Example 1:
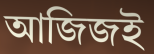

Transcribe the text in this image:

আজিজই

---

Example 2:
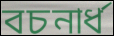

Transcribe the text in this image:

বচনার্ধ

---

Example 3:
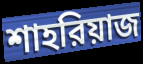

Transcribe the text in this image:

শাহরিয়াজ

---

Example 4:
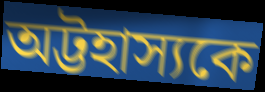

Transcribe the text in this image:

অট্টহাস্যকে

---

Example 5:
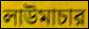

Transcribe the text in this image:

লাউমাচার